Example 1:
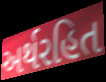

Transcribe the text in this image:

અર્થરહિત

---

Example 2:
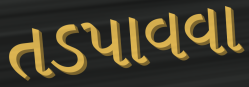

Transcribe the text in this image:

તડપાવવા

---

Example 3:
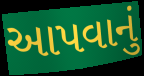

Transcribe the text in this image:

આપવાનું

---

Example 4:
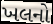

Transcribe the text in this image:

ખલનો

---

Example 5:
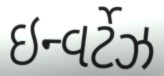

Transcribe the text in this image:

ઇન્વર્ટેઝ